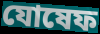
যোষেফ